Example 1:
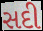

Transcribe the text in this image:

સદી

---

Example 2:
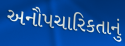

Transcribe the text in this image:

અનૌપચારિકતાનું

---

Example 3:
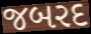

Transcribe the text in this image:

જબરદ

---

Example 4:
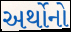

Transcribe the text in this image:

અર્થોનો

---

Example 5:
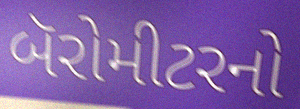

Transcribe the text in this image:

બૅરોમીટરનો